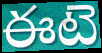
ఈటె